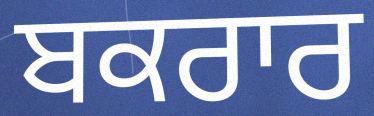
ਬਕਰਾਰ